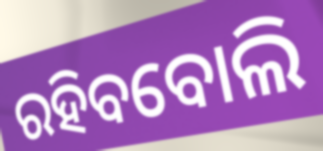
ରହିବବୋଲି